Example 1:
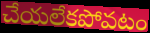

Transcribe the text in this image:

చేయలేకపోవటం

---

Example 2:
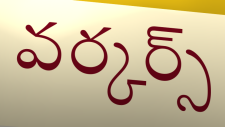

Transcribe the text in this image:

వర్కర్స్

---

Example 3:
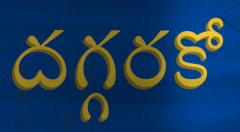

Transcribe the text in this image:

దగ్గరకో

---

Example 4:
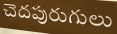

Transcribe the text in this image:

చెదపురుగులు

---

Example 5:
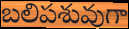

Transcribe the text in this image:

బలిపశువుగా